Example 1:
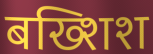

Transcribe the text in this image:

बख्शिश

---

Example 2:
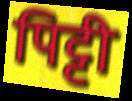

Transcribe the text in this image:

पिट्टी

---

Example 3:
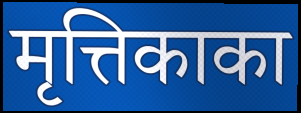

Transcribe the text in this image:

मृत्तिकाका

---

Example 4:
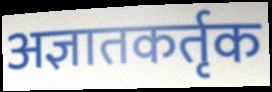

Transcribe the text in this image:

अज्ञातकर्तृक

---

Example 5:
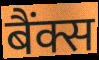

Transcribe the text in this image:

बैंक्स